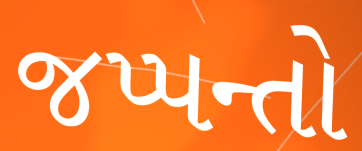
જપ્પન્તો